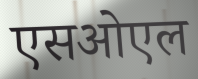
एसओएल